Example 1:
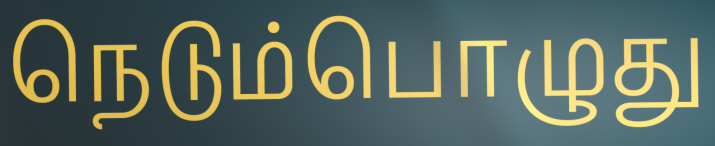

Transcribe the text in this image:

நெடும்பொழுது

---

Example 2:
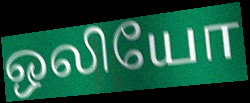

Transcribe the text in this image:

ஒலியோ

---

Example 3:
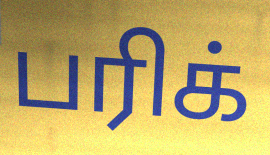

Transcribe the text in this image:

பரிக்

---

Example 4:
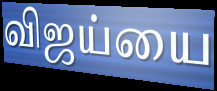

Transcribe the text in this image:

விஜய்யை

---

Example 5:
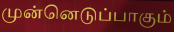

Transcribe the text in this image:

முன்னெடுப்பாகும்